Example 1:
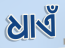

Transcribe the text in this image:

ଧାଏଁ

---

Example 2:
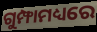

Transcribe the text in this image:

ଗୁମ୍ଫାମଧ୍ୟରେ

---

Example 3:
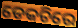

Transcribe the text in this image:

ଡେକଚିରେ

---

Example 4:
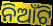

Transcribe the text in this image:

ନିଆଁଟି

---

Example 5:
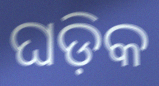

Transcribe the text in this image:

ଘଡ଼ିକ